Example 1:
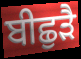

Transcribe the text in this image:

ਬੀਛੁੜੈ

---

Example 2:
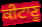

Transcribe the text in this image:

ਕੀਟਾਣੂ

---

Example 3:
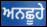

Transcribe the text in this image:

ਅਨਛੂਹੇ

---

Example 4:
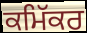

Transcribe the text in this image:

ਕਮਿੱਕਰ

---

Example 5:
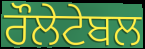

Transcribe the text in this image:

ਰੌਲੇਟੇਬਲ